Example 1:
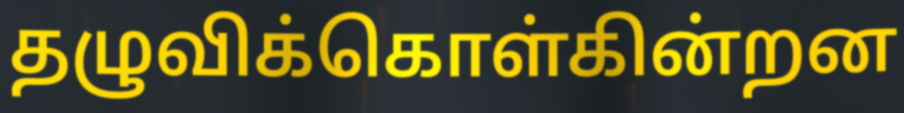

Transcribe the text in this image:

தழுவிக்கொள்கின்றன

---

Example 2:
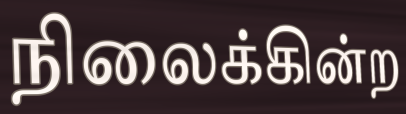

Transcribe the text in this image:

நிலைக்கின்ற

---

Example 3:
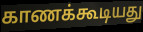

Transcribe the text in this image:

காணக்கூடியது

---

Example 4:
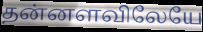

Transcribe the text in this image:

தன்னளவிலேயே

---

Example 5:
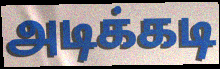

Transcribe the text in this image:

அடிக்கடி